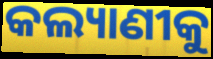
କଲ୍ୟାଣୀକୁ